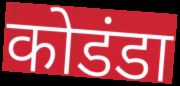
कोडंडा